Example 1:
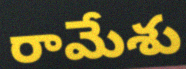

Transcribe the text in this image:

రామేశు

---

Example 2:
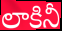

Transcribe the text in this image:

లాకినీ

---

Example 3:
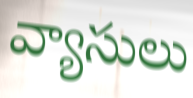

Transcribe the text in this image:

వ్యాసులు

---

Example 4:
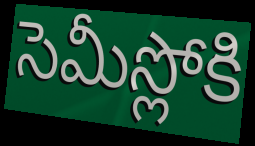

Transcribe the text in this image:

సెమీస్లోకి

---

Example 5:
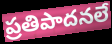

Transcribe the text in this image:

ప్రతిపాదనలే